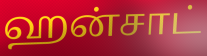
ஹன்சாட்